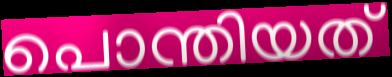
പൊന്തിയത്